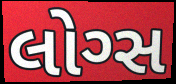
લોગ્સ